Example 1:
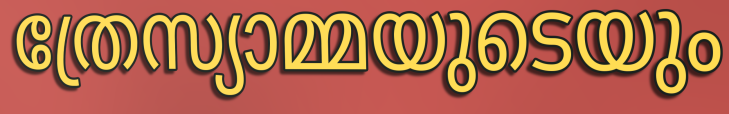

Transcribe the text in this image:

ത്രേസ്യാമ്മയുടെയും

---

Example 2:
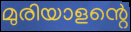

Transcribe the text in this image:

മുരിയാളന്റെ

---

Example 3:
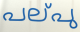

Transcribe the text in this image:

പല്‌പു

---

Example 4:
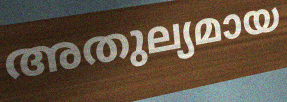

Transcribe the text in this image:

അതുല്യമായ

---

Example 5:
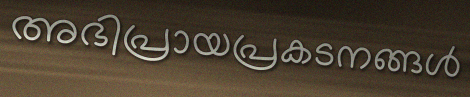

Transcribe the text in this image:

അഭിപ്രായപ്രകടനങ്ങൾ